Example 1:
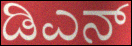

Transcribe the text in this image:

ಡಿಎನ್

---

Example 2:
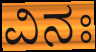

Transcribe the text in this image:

ವಿನಃ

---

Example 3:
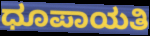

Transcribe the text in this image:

ಧೂಪಾಯತಿ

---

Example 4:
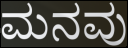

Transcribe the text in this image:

ಮನವು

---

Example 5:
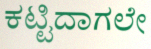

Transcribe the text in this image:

ಕಟ್ಟಿದಾಗಲೇ